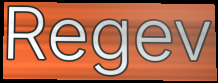
Regev